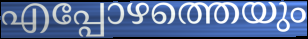
എപ്പോഴത്തെയും